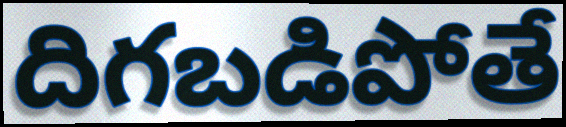
దిగబడిపోతే